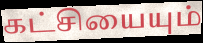
கட்சியையும்